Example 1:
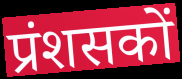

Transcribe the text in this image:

प्रंशसकों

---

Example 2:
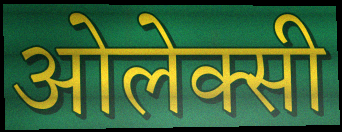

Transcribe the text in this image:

ओलेक्सी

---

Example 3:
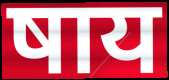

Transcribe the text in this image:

षाय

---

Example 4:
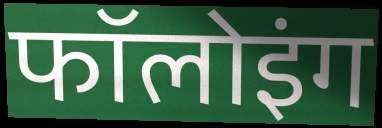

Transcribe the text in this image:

फॉलोइंग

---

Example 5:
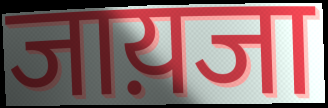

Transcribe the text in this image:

जाय़जा